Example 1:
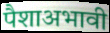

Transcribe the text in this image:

पैशाअभावी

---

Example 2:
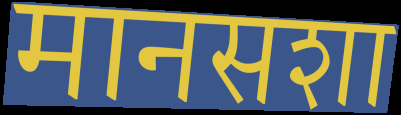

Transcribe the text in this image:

मानसशा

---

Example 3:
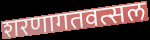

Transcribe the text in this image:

शरणागतवत्सल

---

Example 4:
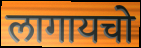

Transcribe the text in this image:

लागायचो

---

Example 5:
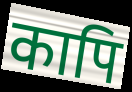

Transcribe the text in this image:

कापि